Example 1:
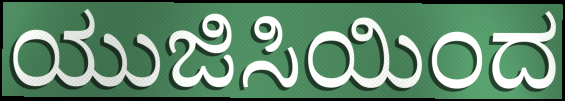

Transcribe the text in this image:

ಯುಜಿಸಿಯಿಂದ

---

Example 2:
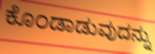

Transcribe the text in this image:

ಕೊಂಡಾಡುವುದನ್ನು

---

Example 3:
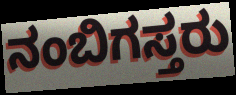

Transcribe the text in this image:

ನಂಬಿಗಸ್ತರು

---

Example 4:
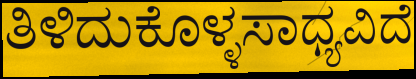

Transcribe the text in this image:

ತಿಳಿದುಕೊಳ್ಳಸಾಧ್ಯವಿದೆ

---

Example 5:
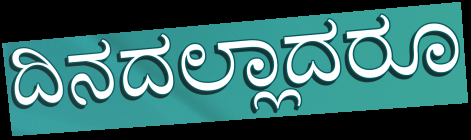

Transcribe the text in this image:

ದಿನದಲ್ಲಾದರೂ